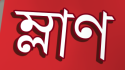
ম্লাণ